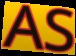
AS